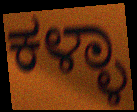
ಕಳ್ಳಾ